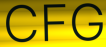
CFG